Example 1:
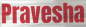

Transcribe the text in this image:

Pravesha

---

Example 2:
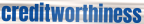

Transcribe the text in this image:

creditworthiness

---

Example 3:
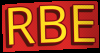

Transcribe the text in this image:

RBE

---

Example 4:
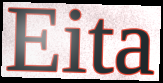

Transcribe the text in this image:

Eita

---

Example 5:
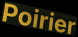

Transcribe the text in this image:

Poirier